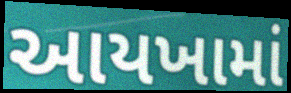
આયખામાં